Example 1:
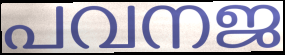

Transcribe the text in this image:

പവനജ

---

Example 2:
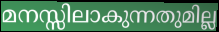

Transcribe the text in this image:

മനസ്സിലാകുന്നതുമില്ല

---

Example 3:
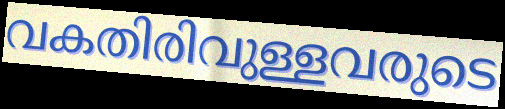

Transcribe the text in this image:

വകതിരിവുള്ളവരുടെ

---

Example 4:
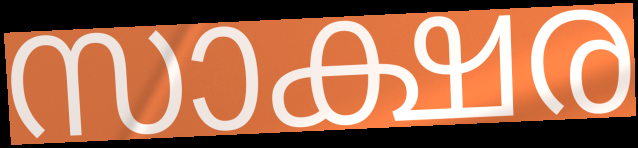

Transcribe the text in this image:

സാക്ഷര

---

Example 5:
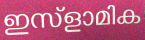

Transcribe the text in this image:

ഇസ്ളാമിക